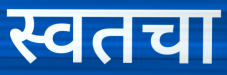
स्वतचा